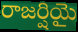
రాజర్షియై